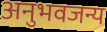
अनुभवजन्य